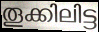
തൂക്കിലിട്ട